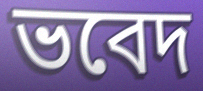
ভবেদ